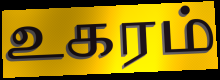
உகரம்